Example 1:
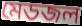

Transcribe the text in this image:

মেডজল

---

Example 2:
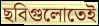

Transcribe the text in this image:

ছবিগুলোতেই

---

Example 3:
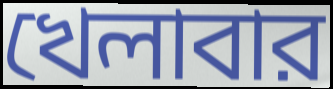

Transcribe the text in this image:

খেলাবার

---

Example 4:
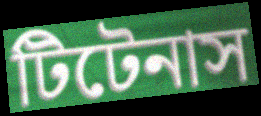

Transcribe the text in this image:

টিটেনাস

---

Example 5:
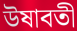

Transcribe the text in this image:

উষাবতী